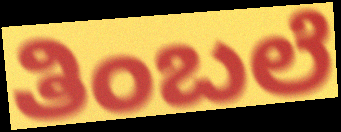
ತಿಂಬಲೆ